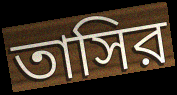
তাসির